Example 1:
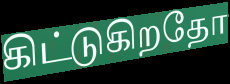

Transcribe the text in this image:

கிட்டுகிறதோ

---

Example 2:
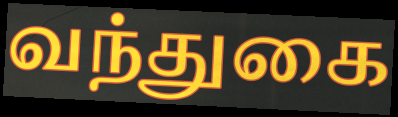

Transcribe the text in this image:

வந்துகை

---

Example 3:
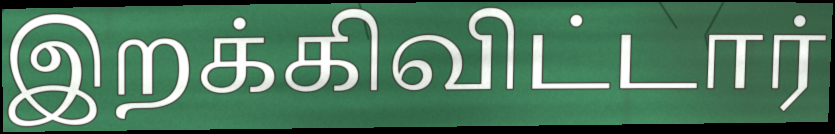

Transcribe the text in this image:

இறக்கிவிட்டார்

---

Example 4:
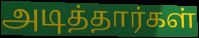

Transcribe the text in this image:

அடித்தார்கள்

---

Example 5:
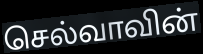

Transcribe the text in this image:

செல்வாவின்